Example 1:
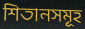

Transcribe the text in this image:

শিতানসমূহ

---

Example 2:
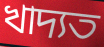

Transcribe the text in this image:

খাদ্যত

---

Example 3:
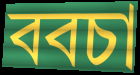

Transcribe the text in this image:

ববচা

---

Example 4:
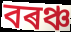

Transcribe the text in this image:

বৰঞ্চ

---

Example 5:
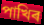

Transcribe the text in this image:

পাখিৰ